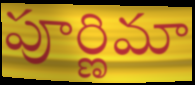
పూర్ణిమా